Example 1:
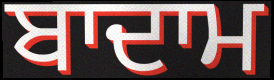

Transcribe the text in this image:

ਬਾਦਾਮ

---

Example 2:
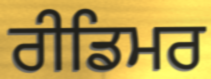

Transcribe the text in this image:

ਰੀਡਿਮਰ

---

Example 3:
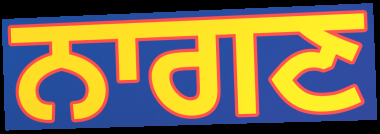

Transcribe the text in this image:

ਨਾਗਣ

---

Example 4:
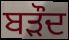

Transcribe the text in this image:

ਬੜੌਦ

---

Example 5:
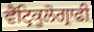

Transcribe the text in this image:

ਵੈਂਟ੍ਰਿਕੂਲੋਗ੍ਰਾਫੀ